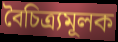
বৈচিত্ৰ্যমূলক